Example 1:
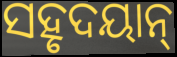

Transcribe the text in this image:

ସହୃଦୟାନ୍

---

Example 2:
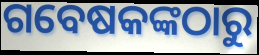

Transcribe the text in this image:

ଗବେଷକଙ୍କଠାରୁ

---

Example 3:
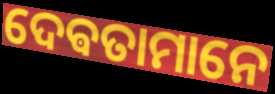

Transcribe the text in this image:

ଦେଵତାମାନେ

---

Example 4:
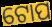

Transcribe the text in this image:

ଟୋପ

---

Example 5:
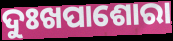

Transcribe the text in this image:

ଦୁଃଖପାଶୋରା